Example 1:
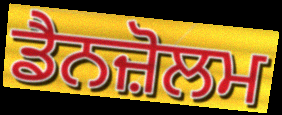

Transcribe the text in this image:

ਡੈਨਜ਼ੋਲਮ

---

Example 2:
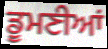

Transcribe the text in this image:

ਡੂਮਣੀਆਂ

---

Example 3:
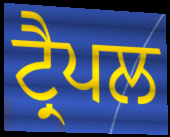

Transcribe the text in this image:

ਟ੍ਰੈਪਲ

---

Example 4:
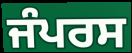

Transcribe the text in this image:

ਜੰਪਰਸ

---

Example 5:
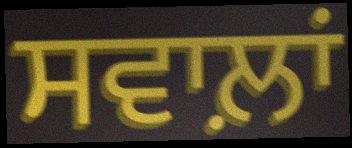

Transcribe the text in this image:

ਸਵਾਲ਼ਾਂ